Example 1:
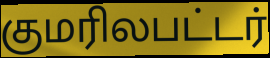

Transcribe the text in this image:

குமரிலபட்டர்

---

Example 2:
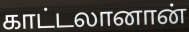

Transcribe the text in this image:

காட்டலானான்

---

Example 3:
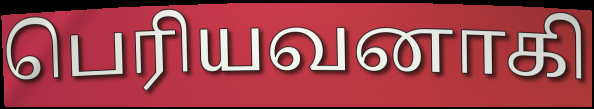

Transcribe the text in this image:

பெரியவனாகி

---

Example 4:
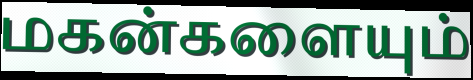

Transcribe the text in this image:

மகன்களையும்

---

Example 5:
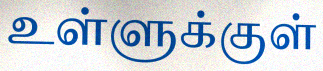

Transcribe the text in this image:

உள்ளுக்குள்